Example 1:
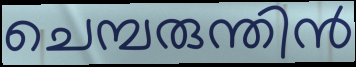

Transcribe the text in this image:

ചെമ്പരുന്തിൻ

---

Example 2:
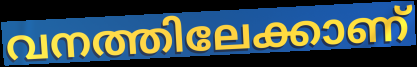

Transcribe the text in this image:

വനത്തിലേക്കാണ്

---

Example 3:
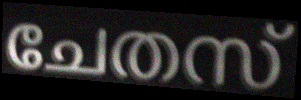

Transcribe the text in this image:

ചേതസ്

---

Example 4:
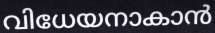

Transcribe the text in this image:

വിധേയനാകാൻ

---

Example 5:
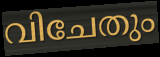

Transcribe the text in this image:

വിചേതും